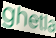
ghetla